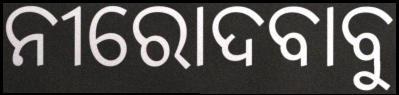
ନୀରୋଦବାବୁ